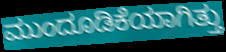
ಮುಂದೂಡಿಕೆಯಾಗಿತ್ತು